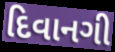
દિવાનગી